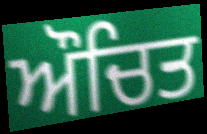
ਔਚਿਤ